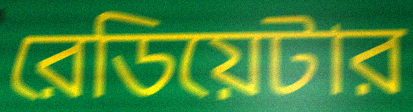
রেডিয়েটার